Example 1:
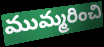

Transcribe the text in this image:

ముమ్మరించి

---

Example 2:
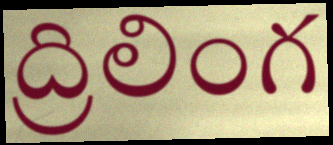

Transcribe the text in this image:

ద్రిలింగ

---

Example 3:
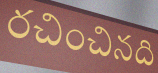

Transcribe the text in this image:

రచించినది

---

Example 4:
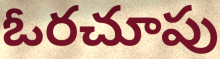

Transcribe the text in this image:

ఓరచూపు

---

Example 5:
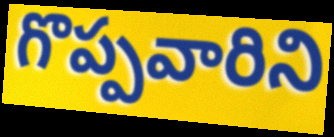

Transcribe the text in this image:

గొప్పవారిని